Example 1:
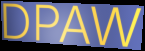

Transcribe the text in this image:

DPAW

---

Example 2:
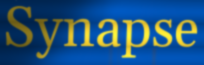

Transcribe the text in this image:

Synapse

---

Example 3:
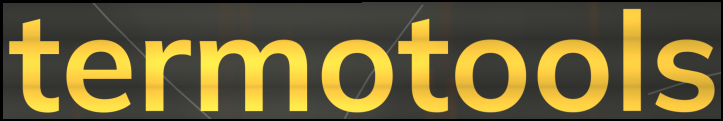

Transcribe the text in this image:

termotools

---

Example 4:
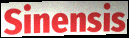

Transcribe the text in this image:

Sinensis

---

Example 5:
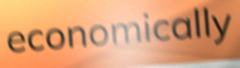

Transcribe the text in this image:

economically